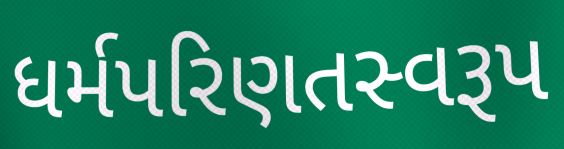
ધર્મપરિણતસ્વરૂપ